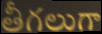
తీగలుగా